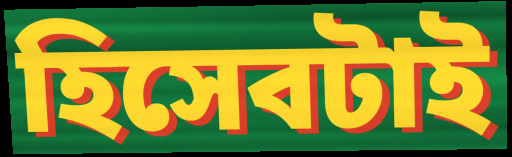
হিসেবটাই